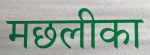
मछलीका